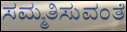
ಸಮ್ಮತಿಸುವಂತೆ